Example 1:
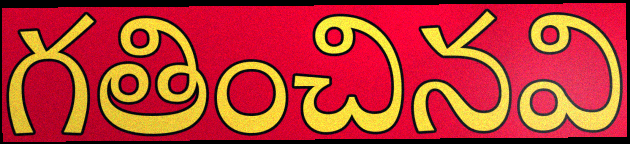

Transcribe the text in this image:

గతించినవి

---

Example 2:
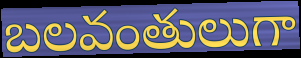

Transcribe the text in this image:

బలవంతులుగా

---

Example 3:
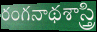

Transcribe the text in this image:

రంగనాథశాస్త్రి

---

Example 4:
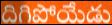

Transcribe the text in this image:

దిగిపోయేడు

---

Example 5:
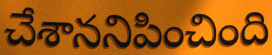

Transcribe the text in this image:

చేశాననిపించింది